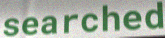
searched